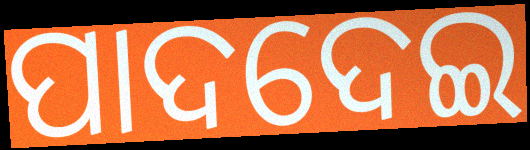
ପାଦଦେଇ